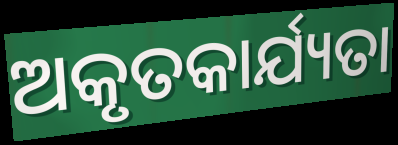
ଅକୃତକାର୍ଯ୍ୟତା